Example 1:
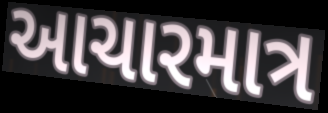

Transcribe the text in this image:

આચારમાત્ર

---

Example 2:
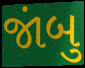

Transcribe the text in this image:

જાંબુ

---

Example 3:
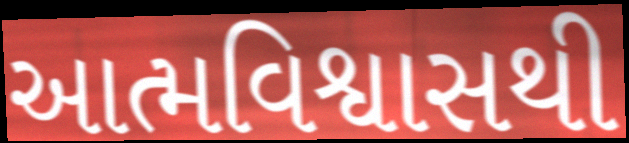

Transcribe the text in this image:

આત્મવિશ્વાસથી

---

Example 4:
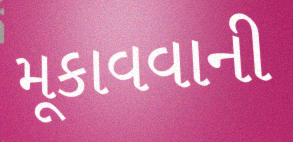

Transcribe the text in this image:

મૂકાવવાની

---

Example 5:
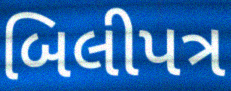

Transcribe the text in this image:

બિલીપત્ર